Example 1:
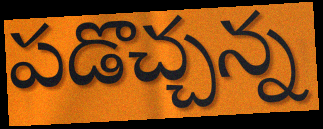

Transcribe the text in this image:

పడొచ్చన్న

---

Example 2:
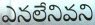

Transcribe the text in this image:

ఎనలేనివని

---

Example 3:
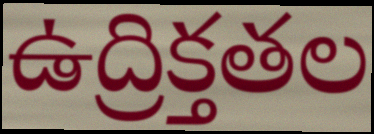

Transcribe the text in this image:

ఉద్రిక్తతల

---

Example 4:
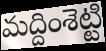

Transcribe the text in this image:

మద్దింశెట్టి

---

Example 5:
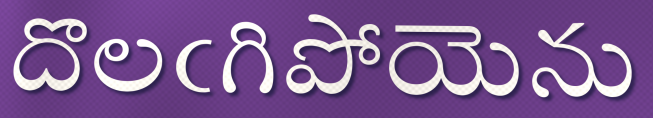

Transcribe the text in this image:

దొలఁగిపోయెను